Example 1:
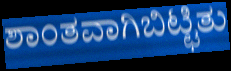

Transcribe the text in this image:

ಶಾಂತವಾಗಿಬಿಟ್ಟಿತು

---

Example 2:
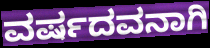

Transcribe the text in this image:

ವರ್ಷದವನಾಗಿ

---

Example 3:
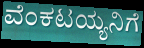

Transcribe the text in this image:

ವೆಂಕಟಯ್ಯನಿಗೆ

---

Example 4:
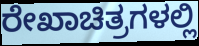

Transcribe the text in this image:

ರೇಖಾಚಿತ್ರಗಳಲ್ಲಿ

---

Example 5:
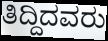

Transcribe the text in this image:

ತಿದ್ದಿದವರು